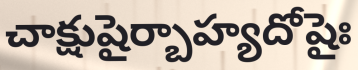
చాక్షుషైర్బాహ్యదోషైః